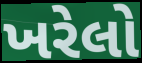
ખરેલો